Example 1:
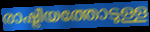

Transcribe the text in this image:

രാഷ്ട്രീയത്തോടുള്ള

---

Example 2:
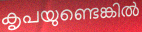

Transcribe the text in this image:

കൃപയുണ്ടെങ്കിൽ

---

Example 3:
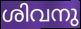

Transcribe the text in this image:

ശിവനു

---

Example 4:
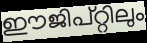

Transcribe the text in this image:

ഈജിപ്റ്റിലും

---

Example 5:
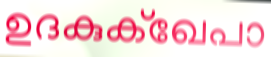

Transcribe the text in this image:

ഉദകുക്ഖേപാ